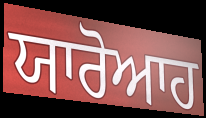
ਯਾਰੋਆਹ